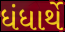
ધંધાર્થે